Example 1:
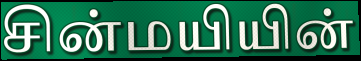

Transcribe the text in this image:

சின்மயியின்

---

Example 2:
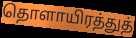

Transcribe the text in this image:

தொளாயிரத்துத்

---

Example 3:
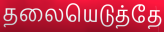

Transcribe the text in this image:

தலையெடுத்தே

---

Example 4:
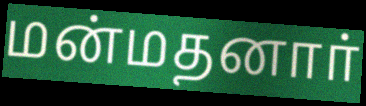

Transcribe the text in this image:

மன்மதனார்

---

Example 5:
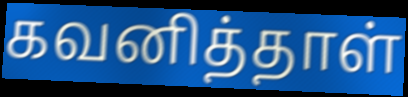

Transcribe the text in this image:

கவனித்தாள்